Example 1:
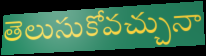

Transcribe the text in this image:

తెలుసుకోవచ్చునా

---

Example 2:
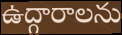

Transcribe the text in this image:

ఉద్గారాలను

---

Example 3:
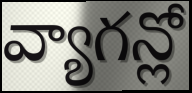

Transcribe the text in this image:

వ్యాగన్లో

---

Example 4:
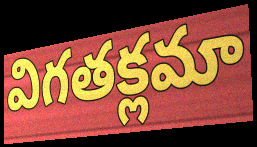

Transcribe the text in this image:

విగతక్లమా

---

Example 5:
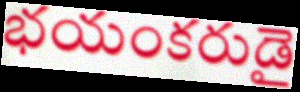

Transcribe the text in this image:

భయంకరుడై